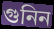
গুনিন